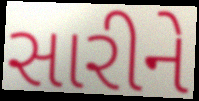
સારીને